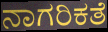
ನಾಗರಿಕತೆ